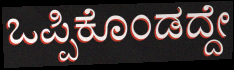
ಒಪ್ಪಿಕೊಂಡದ್ದೇ